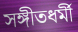
সঙ্গীতধর্মী